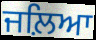
ਜਲ਼ਿਆ